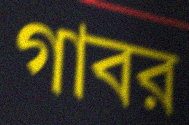
গাবর